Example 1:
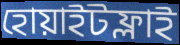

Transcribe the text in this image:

হোয়াইটফ্লাই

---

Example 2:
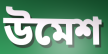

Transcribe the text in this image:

উমেশ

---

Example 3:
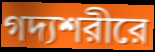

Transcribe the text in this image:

গদ্যশরীরে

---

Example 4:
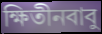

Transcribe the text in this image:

ক্ষিতীনবাবু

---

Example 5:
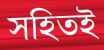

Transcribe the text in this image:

সহিতই